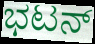
ಭಟನ್